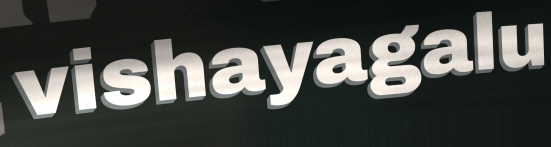
vishayagalu